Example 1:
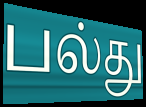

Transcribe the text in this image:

பல்து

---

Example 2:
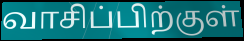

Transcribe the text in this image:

வாசிப்பிற்குள்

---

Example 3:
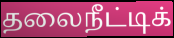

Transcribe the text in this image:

தலைநீட்டிக்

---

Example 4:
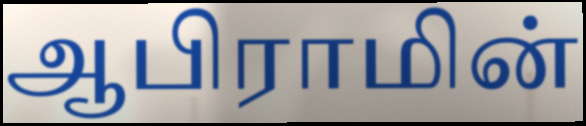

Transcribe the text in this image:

ஆபிராமின்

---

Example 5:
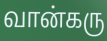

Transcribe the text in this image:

வான்கரு